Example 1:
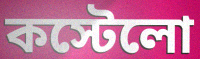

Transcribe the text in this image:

কস্টেলো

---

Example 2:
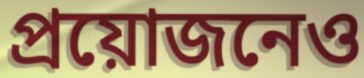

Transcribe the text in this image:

প্রয়োজনেও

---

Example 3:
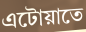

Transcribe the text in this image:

এটোয়াতে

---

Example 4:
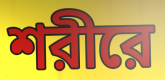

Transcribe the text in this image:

শরীরে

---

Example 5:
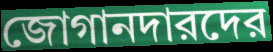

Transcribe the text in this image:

জোগানদারদের